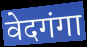
वेदगंगा